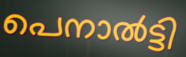
പെനാൽട്ടി